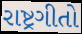
રાષ્ટ્રગીતો